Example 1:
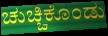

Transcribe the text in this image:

ಚುಚ್ಚಿಕೊಂಡು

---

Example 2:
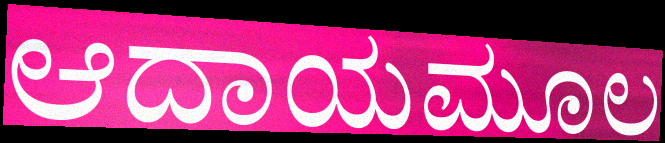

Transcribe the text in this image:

ಆದಾಯಮೂಲ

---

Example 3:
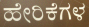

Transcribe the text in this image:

ಹೇರಿಕೆಗಳ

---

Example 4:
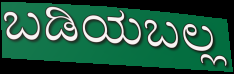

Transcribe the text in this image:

ಬಡಿಯಬಲ್ಲ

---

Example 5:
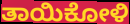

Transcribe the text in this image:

ತಾಯಿಕೋಳಿ